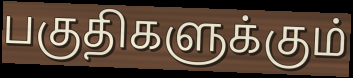
பகுதிகளுக்கும்